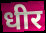
धीर